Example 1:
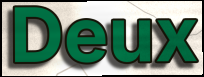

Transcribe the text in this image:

Deux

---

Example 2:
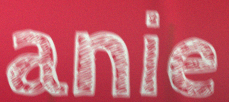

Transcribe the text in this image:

anie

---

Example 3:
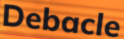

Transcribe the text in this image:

Debacle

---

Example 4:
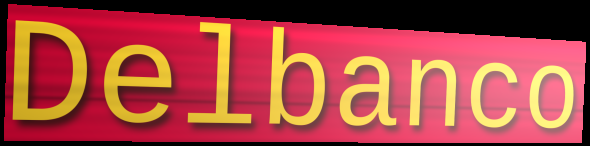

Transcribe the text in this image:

Delbanco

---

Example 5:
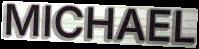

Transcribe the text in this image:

MICHAEL